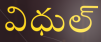
విధుల్